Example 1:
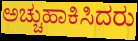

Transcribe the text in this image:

ಅಚ್ಚುಹಾಕಿಸಿದರು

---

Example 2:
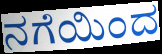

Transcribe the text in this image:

ನಗೆಯಿಂದ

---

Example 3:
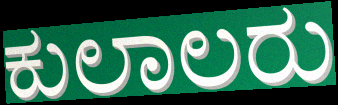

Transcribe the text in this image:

ಕುಲಾಲರು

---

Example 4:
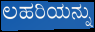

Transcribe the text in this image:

ಲಹರಿಯನ್ನು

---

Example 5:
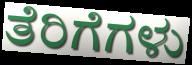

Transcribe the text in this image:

ತೆರಿಗೆಗಳು